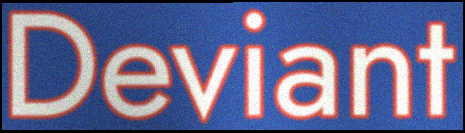
Deviant